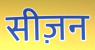
सीज़न